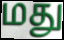
மது